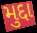
મુદ્દા